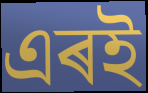
এৰই